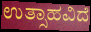
ಉತ್ಸಾಹವಿದೆ